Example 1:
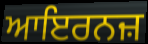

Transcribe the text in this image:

ਆਇਰਨਜ਼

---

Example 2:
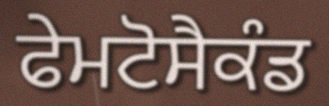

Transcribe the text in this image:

ਫੇਮਟੋਸੈਕੰਡ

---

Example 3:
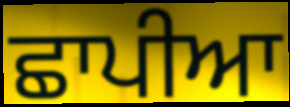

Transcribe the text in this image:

ਛਾਪੀਆ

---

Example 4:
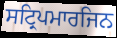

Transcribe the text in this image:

ਸਟ੍ਰਿਪਮਾਰਜਿਨ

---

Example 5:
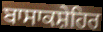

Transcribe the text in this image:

ਬਾਸਾਕਸ਼ੇਹਿਰ